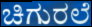
ಚಿಗುರಲೆ